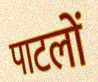
पाटलों